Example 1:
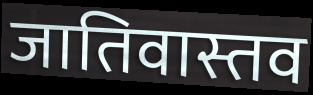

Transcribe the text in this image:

जातिवास्तव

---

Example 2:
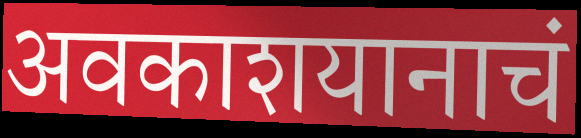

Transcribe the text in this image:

अवकाशयानाचं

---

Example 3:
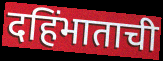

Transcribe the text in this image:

दहिंभाताची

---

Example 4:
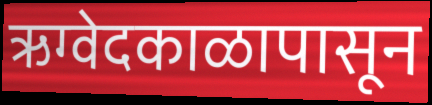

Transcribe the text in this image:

ऋग्वेदकाळापासून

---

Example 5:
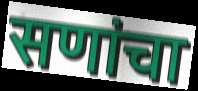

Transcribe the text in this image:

सणांचा